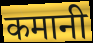
कमानी